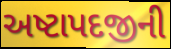
અષ્ટાપદજીની